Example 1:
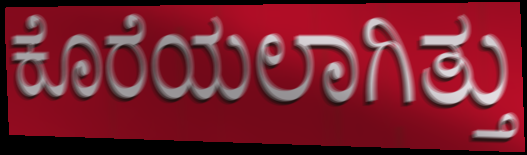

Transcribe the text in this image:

ಕೊರೆಯಲಾಗಿತ್ತು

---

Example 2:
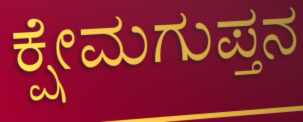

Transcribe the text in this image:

ಕ್ಷೇಮಗುಪ್ತನ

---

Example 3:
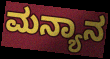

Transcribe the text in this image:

ಮನ್ಯಾನ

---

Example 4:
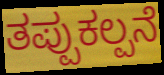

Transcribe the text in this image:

ತಪ್ಪುಕಲ್ಪನೆ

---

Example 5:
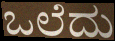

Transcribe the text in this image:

ಒಲೆದು